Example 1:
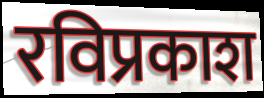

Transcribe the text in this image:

रविप्रकाश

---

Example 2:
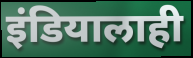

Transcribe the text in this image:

इंडियालाही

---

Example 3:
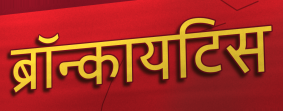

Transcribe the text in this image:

ब्रॉन्कायटिस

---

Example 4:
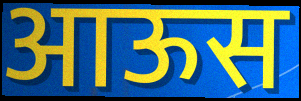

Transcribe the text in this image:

आऊस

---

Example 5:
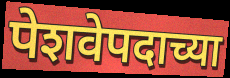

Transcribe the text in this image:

पेशवेपदाच्या